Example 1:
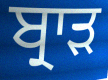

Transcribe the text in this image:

ਬ੍ਰਾੜ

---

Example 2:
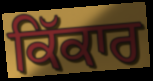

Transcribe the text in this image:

ਕਿੱਕਾਰ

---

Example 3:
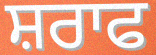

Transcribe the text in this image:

ਸ਼ਰਾਫ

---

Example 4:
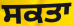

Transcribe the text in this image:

ਸਕਤਾ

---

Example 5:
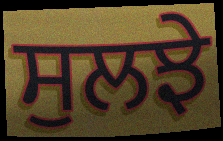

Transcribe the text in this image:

ਸੁਲਝੇ